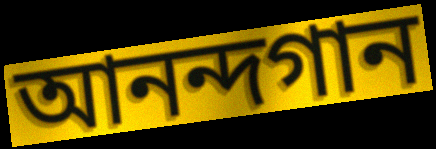
আনন্দগান